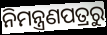
ନିମନ୍ତ୍ରଣପତ୍ରରୁ